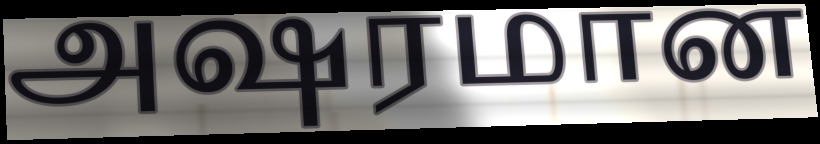
அஷரமான